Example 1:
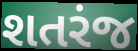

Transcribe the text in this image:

શતરંજ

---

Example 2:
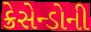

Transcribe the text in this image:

ક્રેસેન્ડોની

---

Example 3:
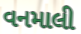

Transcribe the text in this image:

વનમાલી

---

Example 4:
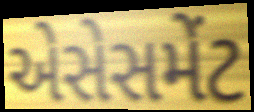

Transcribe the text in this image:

એસેસમેંટ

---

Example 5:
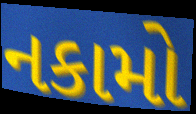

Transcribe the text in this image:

નકામો